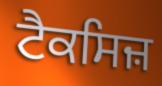
ਟੈਕਸਿਜ਼